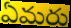
ఏమరు